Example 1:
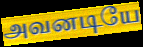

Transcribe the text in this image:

அவனடியே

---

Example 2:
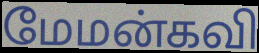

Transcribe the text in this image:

மேமன்கவி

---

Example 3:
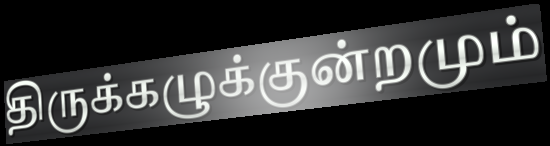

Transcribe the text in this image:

திருக்கழுக்குன்றமும்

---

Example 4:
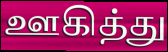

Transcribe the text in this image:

ஊகித்து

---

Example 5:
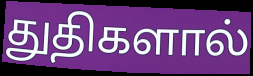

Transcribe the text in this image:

துதிகளால்